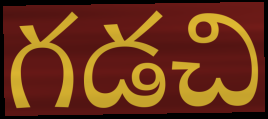
గడచి